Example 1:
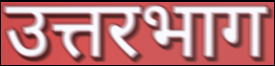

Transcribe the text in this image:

उत्तरभाग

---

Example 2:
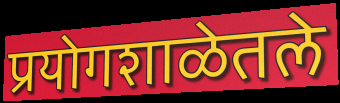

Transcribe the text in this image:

प्रयोगशाळेतले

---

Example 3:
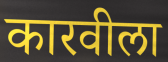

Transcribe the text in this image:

कारवीला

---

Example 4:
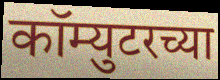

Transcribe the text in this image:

कॉम्युटरच्या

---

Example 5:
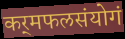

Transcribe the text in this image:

कर्मफलसंयोगं